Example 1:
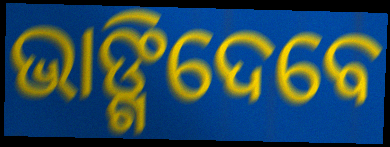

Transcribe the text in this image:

ଭାଙ୍ଗିଦେବେ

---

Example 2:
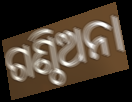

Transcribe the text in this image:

ଗଣ୍ଠିଅନା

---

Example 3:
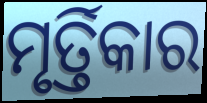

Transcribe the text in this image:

ମୃର୍ତ୍ତିକାର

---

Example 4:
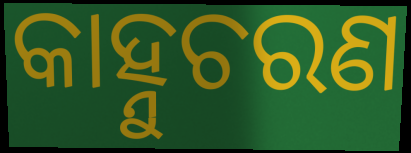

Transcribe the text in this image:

କାହ୍ନୁଚରଣ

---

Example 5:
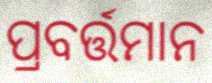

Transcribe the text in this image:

ପ୍ରବର୍ତ୍ତମାନ